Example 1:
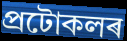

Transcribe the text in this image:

প্ৰটোকলৰ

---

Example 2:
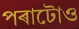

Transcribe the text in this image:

পৰাটোও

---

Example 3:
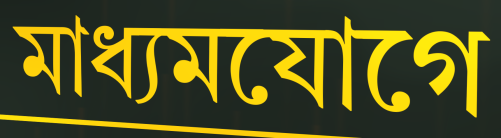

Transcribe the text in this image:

মাধ্যমযোগে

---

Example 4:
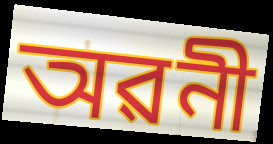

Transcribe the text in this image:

অৱনী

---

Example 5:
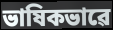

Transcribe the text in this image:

ভাষিকভাৱে